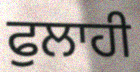
ਫੁਲਾਹੀ